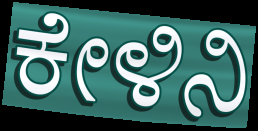
ಕೇಳಿನಿ